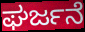
ಘರ್ಜನೆ